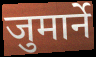
जुमार्ने